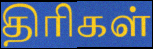
திரிகள்